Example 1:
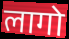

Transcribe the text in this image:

लागो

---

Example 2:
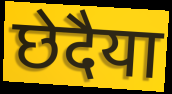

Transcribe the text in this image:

छेदैया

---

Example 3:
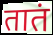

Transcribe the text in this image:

तातं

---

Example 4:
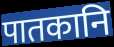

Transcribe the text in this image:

पातकानि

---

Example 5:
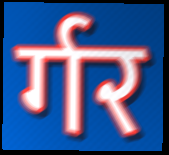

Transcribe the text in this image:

र्गर